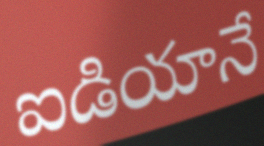
ఐడియానే